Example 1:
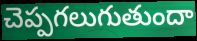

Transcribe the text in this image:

చెప్పగలుగుతుందా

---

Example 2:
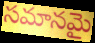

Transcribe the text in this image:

సమానమై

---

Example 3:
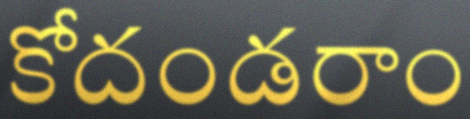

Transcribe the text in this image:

కోదండరాం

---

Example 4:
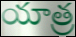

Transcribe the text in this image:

యాత్ర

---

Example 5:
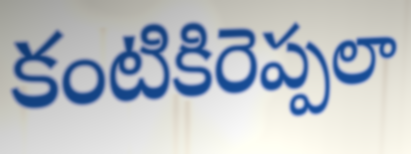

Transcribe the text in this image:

కంటికిరెప్పలా